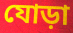
যোড়া